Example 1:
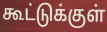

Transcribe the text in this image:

கூட்டுக்குள்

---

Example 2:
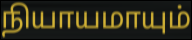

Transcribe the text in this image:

நியாயமாயும்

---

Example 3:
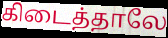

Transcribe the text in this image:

கிடைத்தாலே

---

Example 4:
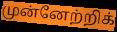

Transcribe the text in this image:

முன்னேற்றிக்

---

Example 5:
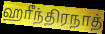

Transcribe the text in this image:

ஹரீந்திரநாத்